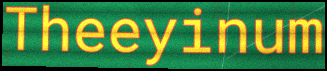
Theeyinum